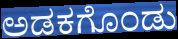
ಅಡಕಗೊಂಡು